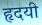
हृदयी